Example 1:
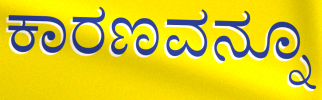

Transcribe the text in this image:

ಕಾರಣವನ್ನೂ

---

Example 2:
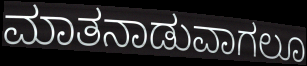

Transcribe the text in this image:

ಮಾತನಾಡುವಾಗಲೂ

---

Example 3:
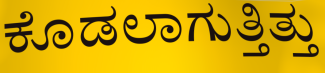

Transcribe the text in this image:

ಕೊಡಲಾಗುತ್ತಿತ್ತು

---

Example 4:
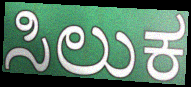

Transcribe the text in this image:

ಸಿಲುಕ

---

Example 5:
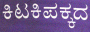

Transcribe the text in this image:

ಕಿಟಕಿಪಕ್ಕದ